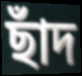
ছাঁদ